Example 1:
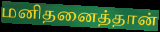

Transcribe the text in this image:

மனிதனைத்தான்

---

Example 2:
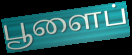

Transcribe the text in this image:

பூளைப்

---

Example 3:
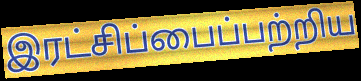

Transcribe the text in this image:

இரட்சிப்பைப்பற்றிய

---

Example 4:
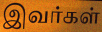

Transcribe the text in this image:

இவர்கள்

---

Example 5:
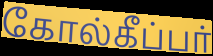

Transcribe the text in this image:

கோல்கீப்பர்